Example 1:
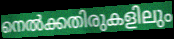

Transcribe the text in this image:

നെൽക്കതിരുകളിലും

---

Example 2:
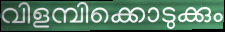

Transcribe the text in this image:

വിളമ്പിക്കൊടുക്കും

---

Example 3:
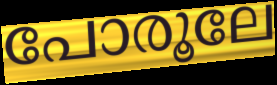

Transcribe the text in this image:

പോരൂലേ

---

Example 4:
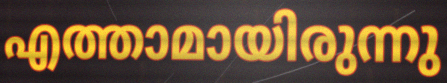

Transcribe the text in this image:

എത്താമായിരുന്നു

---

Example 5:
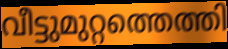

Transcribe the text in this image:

വീട്ടുമുറ്റത്തെത്തി